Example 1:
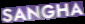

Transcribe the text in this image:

SANGHA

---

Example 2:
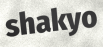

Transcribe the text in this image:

shakyo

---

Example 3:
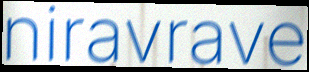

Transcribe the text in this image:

niravrave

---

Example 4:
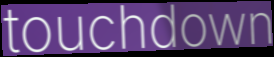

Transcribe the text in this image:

touchdown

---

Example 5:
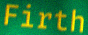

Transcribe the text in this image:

Firth